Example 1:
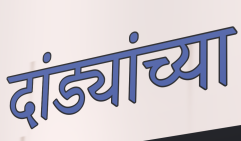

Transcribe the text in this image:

दांड्यांच्या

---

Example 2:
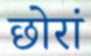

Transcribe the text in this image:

छोरां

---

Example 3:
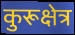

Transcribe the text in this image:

कुरूक्षेत्र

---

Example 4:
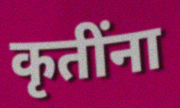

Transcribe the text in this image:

कृतींना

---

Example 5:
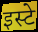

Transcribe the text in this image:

इस्टे